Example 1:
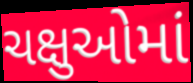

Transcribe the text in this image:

ચક્ષુઓમાં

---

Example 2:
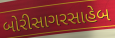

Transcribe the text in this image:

બોરીસાગરસાહેબ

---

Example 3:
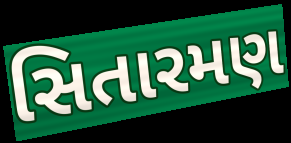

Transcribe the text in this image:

સિતારમણ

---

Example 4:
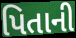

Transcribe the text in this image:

પિતાની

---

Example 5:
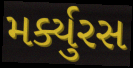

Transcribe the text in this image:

મર્ક્યુરસ